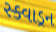
સ્ક્વાડ્રન